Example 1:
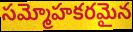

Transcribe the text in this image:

సమ్మోహకరమైన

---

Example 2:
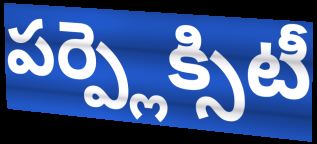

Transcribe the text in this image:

పర్ప్లెక్సిటీ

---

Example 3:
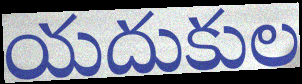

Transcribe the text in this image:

యదుకుల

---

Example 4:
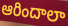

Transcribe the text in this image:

ఆరిందాలా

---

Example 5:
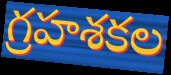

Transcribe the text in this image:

గ్రహశకల